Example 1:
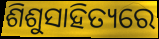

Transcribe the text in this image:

ଶିଶୁସାହିତ୍ୟରେ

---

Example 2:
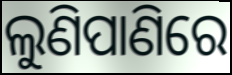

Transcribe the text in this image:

ଲୁଣିପାଣିରେ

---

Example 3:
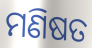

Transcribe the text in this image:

ମଣିଷତ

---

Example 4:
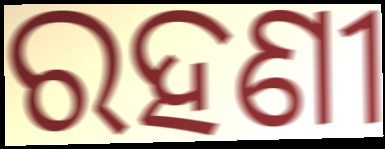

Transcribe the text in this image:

ରହଣୀ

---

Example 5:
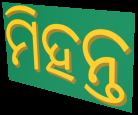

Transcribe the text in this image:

ମିହନ୍ତ